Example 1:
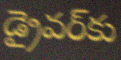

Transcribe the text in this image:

డ్రైవర్‌కు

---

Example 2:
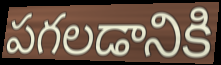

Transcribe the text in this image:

పగలడానికి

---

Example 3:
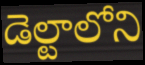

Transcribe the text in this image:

డెల్టాలోని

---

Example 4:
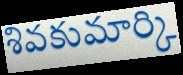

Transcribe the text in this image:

శివకుమార్కి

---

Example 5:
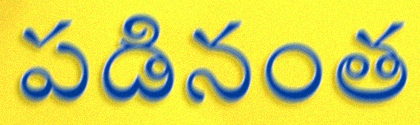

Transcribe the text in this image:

పడినంత